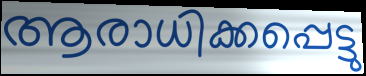
ആരാധിക്കപ്പെട്ടു